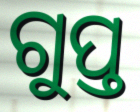
ଗୁପ୍ତ